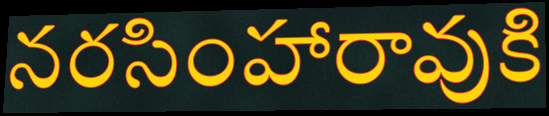
నరసింహారావుకి